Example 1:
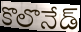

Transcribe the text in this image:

కొలొనేడ్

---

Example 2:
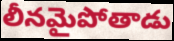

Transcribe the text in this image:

లీనమైపోతాడు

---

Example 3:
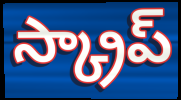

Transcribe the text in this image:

స్క్రాప్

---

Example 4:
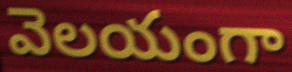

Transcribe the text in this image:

వెలయంగా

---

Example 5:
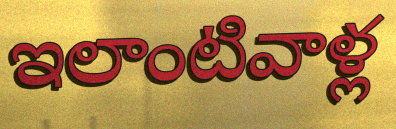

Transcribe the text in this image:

ఇలాంటివాళ్ల